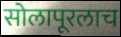
सोलापूरलाच